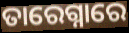
ତାରେଗ୍ନାରେ